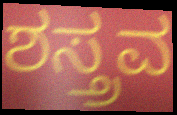
ಶಸ್ತ್ರವ